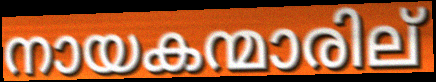
നായകന്മാരില്